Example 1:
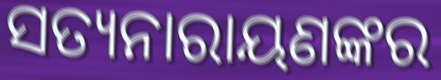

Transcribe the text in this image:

ସତ୍ୟନାରାୟଣଙ୍କର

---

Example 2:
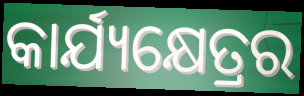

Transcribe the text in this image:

କାର୍ଯ୍ୟକ୍ଷେତ୍ରର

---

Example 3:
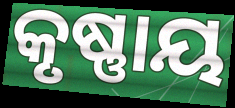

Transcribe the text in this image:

କୃଷ୍ଣାୟ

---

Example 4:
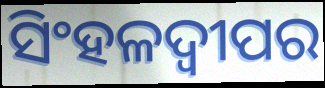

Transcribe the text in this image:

ସିଂହଳଦ୍ୱୀପର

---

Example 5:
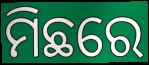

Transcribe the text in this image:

ମିଛରେ